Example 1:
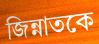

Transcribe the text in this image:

জিন্নাতকে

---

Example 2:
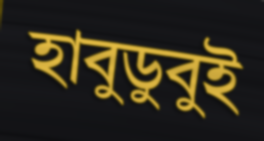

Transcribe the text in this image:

হাবুডুবুই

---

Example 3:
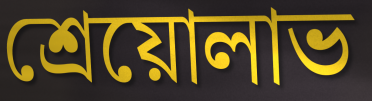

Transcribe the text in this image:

শ্রেয়োলাভ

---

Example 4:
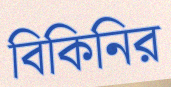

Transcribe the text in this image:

বিকিনির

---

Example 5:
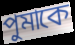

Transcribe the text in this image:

পুমাকে